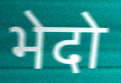
भेदो